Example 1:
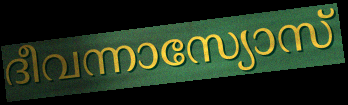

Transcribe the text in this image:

ദീവന്നാസ്യോസ്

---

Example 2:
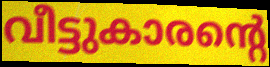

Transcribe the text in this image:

വീട്ടുകാരന്റെ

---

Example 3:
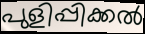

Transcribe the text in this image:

പുളിപ്പിക്കൽ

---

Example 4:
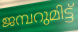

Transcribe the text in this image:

ജമ്പറുമിട്ട്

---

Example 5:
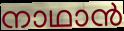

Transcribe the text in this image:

നാഥാൻ